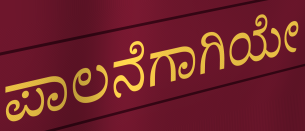
ಪಾಲನೆಗಾಗಿಯೇ